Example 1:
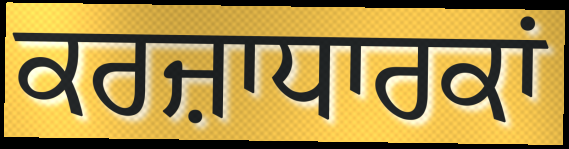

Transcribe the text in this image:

ਕਰਜ਼ਾਧਾਰਕਾਂ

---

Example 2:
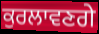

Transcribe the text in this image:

ਕੁਰਲਾਵਣਗੇ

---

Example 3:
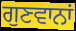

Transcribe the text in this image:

ਗੁਣਵਾਨਾਂ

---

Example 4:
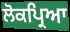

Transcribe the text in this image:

ਲੋਕਪ੍ਰਿਆ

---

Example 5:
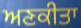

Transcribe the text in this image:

ਅਣਕੀਤਾ